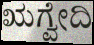
ಋಗ್ವೇದಿ